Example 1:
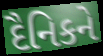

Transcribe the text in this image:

દૈનિકને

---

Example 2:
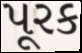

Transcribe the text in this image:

પૂરક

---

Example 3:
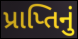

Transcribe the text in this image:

પ્રાપ્તિનું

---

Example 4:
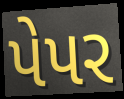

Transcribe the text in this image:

પેપર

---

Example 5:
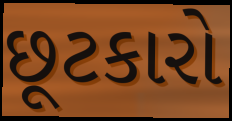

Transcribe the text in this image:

છૂટકારો